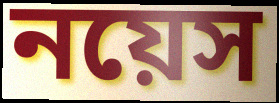
নয়েস